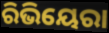
ରିଭିୟେରା